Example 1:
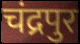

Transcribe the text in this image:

चंद्रपुर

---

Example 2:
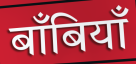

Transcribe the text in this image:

बाँबियाँ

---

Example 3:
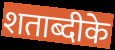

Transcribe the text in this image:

शताब्दीके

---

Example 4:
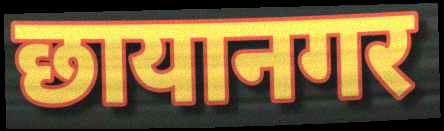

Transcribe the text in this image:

छायानगर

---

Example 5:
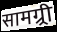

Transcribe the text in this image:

सामग्र्री